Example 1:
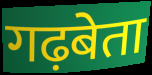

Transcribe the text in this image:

गढ़बेता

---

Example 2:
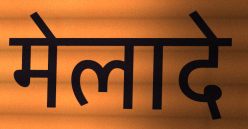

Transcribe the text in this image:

मेलादे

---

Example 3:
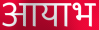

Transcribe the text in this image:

आयाभ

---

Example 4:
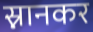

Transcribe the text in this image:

स्नानकर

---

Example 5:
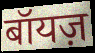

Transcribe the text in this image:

बॉयज़